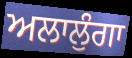
ਅਲਾਲੁੰਗਾ